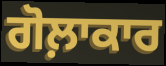
ਗੋਲ਼ਾਕਾਰ